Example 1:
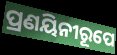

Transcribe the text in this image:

ପ୍ରଣୟିନୀରୂପେ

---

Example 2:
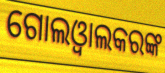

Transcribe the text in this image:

ଗୋଲଓ୍ଵାଲକରଙ୍କ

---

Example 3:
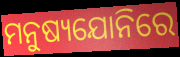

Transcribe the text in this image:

ମନୁଷ୍ୟଯୋନିରେ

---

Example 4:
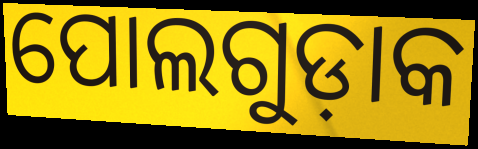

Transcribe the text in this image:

ପୋଲଗୁଡ଼ାକ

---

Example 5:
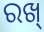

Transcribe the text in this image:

ରଖ୍